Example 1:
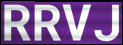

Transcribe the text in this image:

RRVJ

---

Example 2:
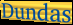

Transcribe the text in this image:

Dundas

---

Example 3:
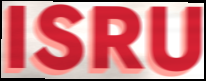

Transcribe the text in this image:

ISRU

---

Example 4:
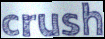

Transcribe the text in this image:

crush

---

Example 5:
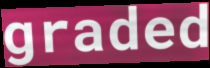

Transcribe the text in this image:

graded